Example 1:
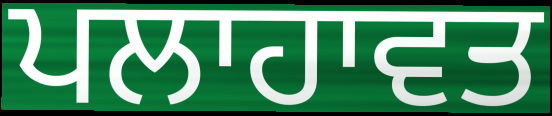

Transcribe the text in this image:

ਪਲਾਹਾਵਤ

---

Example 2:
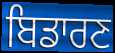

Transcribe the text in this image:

ਬਿਡਾਰਣ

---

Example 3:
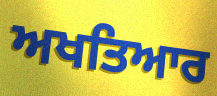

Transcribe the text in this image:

ਅਖਤਿਆਰ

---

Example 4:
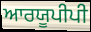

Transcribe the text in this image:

ਆਰਯੂਪੀਪੀ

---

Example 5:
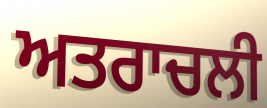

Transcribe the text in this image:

ਅਤਰਾਚਲੀ